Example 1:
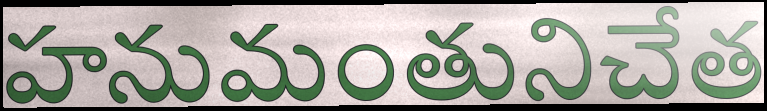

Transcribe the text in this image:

హనుమంతునిచేత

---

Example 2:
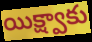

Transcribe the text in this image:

యిక్ష్వాకు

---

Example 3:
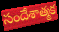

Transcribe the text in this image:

సందేశాత్మక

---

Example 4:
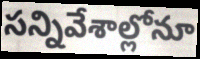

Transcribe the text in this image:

సన్నివేశాల్లోనూ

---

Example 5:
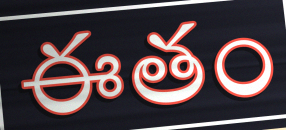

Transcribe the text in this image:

ఈతం